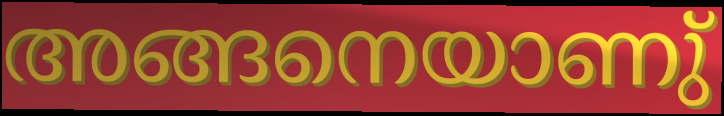
അങ്ങനെയാണു്